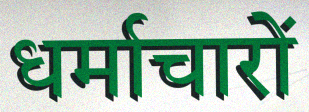
धर्माचारों